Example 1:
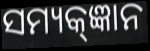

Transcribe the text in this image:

ସମ୍ୟକ୍‌ଜ୍ଞାନ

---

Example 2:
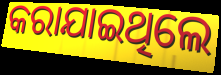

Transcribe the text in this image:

କରାଯାଇଥିଲେ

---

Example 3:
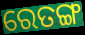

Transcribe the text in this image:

ରେତଙ୍ଗ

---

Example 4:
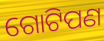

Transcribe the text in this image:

ଗୋଟିପଣ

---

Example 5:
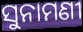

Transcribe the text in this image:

ସୁନାମଣୀ